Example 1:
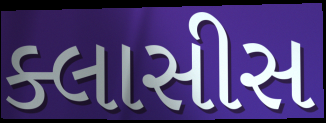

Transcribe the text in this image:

ક્લાસીસ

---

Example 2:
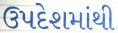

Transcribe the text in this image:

ઉપદેશમાંથી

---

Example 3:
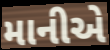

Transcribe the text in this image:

માનીએ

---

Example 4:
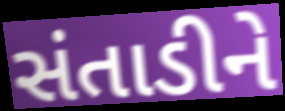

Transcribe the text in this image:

સંતાડીને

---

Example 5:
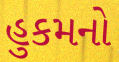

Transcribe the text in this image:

હુકમનો